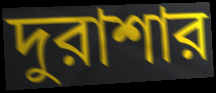
দুরাশার